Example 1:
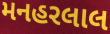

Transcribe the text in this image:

મનહરલાલ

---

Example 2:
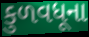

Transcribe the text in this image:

કુળવધૂના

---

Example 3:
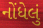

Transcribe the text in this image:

નોંધેલું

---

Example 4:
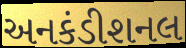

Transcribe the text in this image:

અનકંડીશનલ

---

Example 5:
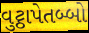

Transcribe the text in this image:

વુટ્ઠાપેતબ્બો